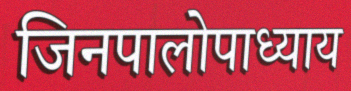
जिनपालोपाध्याय